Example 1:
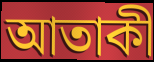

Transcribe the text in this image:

আতাকী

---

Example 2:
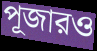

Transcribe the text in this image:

পূজারও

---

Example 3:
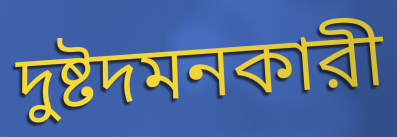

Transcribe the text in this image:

দুষ্টদমনকারী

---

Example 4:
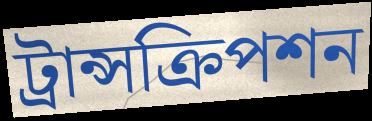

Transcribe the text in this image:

ট্রান্সক্রিপশন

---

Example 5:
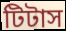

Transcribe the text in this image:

টিটাস